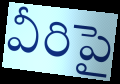
వీరిపై